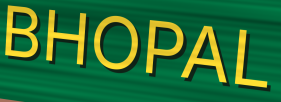
BHOPAL